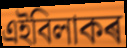
এইবিলাকৰ